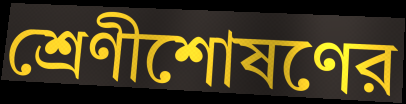
শ্রেণীশোষণের